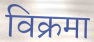
विक्रमा